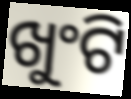
ଖୁଂଟି